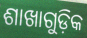
ଶାଖାଗୁଡ଼ିକ